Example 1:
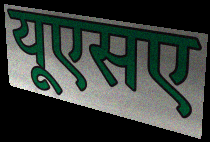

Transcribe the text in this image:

यूएसए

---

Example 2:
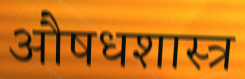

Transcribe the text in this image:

औषधशास्त्र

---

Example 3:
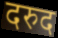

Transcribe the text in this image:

दरुद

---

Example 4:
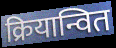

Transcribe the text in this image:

क्रियान्वित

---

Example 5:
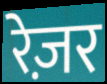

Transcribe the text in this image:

रेज़र